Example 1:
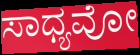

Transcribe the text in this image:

ಸಾಧ್ಯವೋ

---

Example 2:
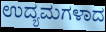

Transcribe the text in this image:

ಉದ್ಯಮಗಳಾದ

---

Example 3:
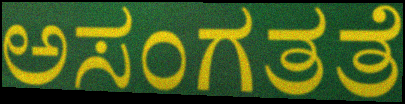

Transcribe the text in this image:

ಅಸಂಗತತೆ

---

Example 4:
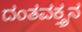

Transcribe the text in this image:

ದಂತವಕ್ತ್ರನ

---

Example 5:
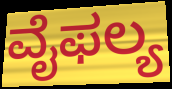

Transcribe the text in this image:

ವೈಫಲ್ಯ